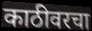
काठीवरचा